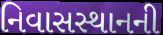
નિવાસસ્થાનની